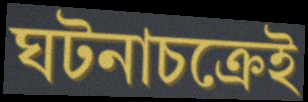
ঘটনাচক্রেই